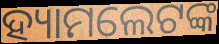
ହ୍ୟାମଲେଟଙ୍କ